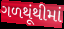
ગળથૂંથીમાં